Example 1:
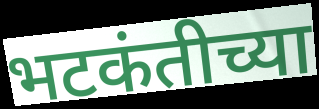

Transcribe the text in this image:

भटकंतीच्या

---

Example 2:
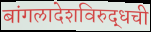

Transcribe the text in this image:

बांगलादेशविरुद्धची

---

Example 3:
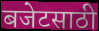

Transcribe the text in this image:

बजेटसाठी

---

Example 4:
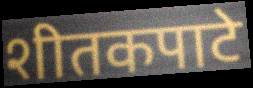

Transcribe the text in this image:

शीतकपाटे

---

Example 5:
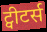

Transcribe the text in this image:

ट्वीटर्स